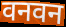
वनवन